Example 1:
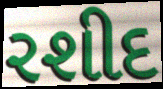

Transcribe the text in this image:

રશીદ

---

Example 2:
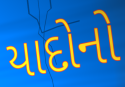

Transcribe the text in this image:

યાદોનો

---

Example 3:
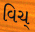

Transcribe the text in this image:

વિચ્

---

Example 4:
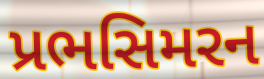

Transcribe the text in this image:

પ્રભસિમરન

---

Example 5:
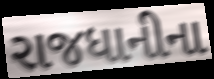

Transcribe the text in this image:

રાજધાનીના